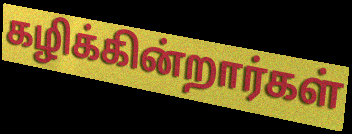
கழிக்கின்றார்கள்